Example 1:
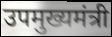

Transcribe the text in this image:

उपमुख्यमंत्री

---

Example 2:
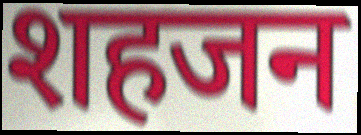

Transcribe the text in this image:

शहजन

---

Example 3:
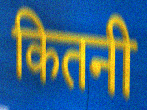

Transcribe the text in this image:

कितनी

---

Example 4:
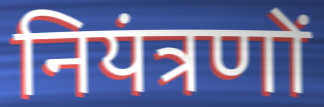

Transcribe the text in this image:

नियंत्रणों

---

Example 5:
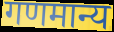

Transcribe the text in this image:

गणमान्य